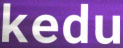
kedu